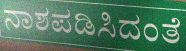
ನಾಶಪಡಿಸಿದಂತೆ